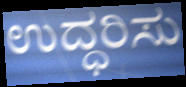
ಉದ್ಧರಿಸು